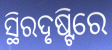
ସ୍ଥିରଦୃଷ୍ଟିରେ